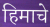
हिमाचे